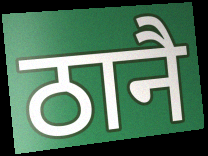
ठानै